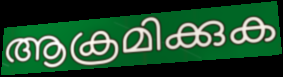
ആക്രമിക്കുക